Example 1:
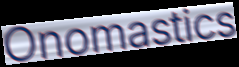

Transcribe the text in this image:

Onomastics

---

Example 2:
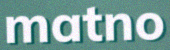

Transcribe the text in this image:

matno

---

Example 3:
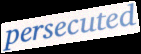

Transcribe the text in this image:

persecuted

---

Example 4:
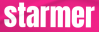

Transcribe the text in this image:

starmer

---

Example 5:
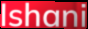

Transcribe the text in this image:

Ishani